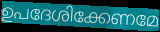
ഉപദേശിക്കേണമേ